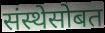
संस्थेसोबत